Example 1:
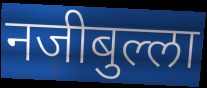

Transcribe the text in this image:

नजीबुल्ला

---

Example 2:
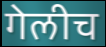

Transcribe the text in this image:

गेलीच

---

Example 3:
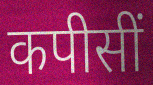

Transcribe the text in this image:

कपीसीं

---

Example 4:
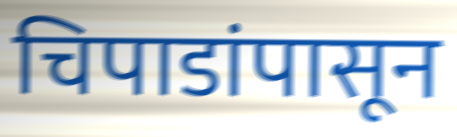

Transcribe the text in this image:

चिपाडांपासून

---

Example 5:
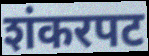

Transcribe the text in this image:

शंकरपट